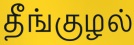
தீங்குழல்